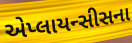
એપ્લાયન્સીસના